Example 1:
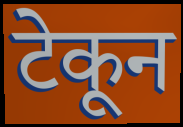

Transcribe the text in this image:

टेकून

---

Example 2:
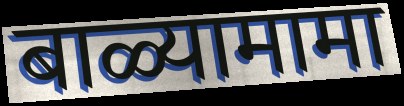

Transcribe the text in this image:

बाळ्यामामा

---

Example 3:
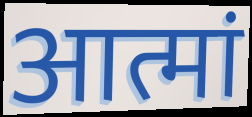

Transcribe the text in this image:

आत्मां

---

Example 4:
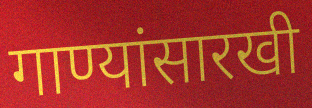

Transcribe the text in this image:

गाण्यांसारखी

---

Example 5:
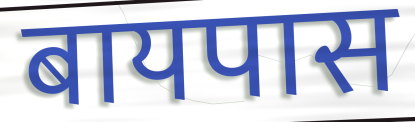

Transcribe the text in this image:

बायपास